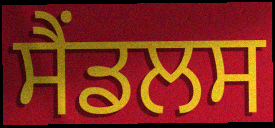
ਸੈਂਡਲਸ